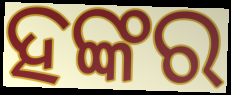
ହଙ୍କର